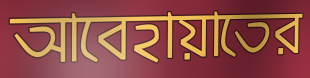
আবেহায়াতের